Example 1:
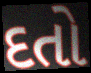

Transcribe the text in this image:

દતો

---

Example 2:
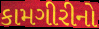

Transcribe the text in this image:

કામગીરીનો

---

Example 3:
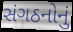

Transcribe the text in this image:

સંગઠનોનું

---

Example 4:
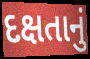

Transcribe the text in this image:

દક્ષતાનું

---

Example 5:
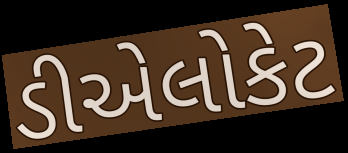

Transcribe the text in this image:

ડીએલોકેટ